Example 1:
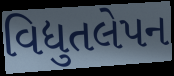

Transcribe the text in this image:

વિદ્યુતલેપન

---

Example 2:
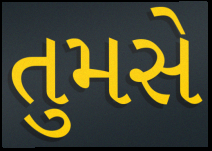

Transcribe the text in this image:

તુમસે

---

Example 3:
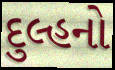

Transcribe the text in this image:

દુલ્હનો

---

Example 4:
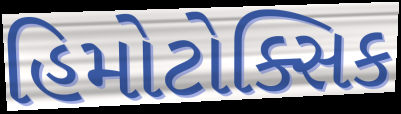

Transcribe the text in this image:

હિમોટોક્સિક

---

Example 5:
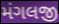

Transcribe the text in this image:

મંગલજી